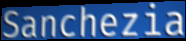
Sanchezia